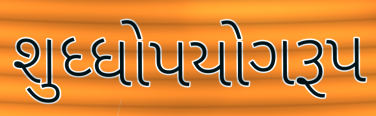
શુધ્ધોપયોગરૂપ